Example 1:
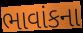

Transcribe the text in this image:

ભાવાંકના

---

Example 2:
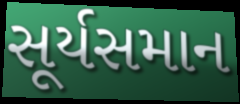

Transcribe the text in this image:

સૂર્યસમાન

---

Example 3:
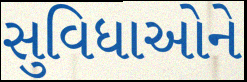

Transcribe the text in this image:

સુવિધાઓને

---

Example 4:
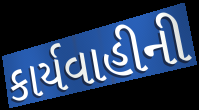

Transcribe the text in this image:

કાર્યવાહીની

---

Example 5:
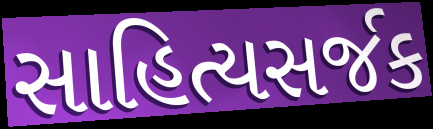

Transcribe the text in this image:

સાહિત્યસર્જક